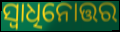
ସ୍ୱାଧିନୋତ୍ତର